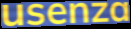
usenza